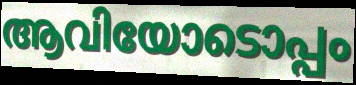
ആവിയോടൊപ്പം